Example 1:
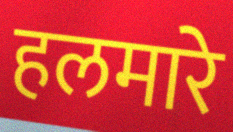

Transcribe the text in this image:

हलमारे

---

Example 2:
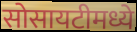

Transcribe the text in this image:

सोसायटीमध्ये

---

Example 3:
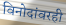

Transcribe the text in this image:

विनोदांवरही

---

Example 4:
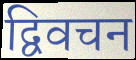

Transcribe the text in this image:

द्विवचन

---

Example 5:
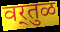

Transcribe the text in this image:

वर्तुळ